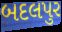
બદલપુર